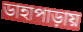
ডাহাপাড়ায়